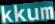
kkum